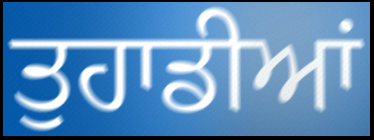
ਤੁਹਾਡੀਆਂ